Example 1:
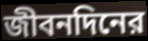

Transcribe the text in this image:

জীবনদিনের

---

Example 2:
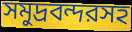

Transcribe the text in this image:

সমুদ্রবন্দরসহ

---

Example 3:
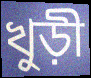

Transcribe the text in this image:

খুড়ী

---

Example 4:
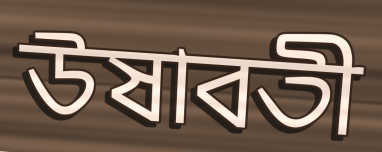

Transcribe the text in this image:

উষাবতী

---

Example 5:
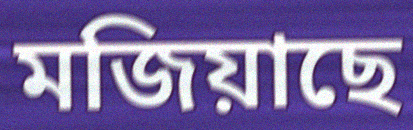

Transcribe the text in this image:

মজিয়াছে